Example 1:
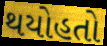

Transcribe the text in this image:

થયોહતો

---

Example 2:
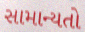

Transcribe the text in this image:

સામાન્યતો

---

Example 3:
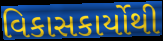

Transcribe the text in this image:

વિકાસકાર્યોથી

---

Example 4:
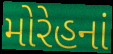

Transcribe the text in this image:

મોરેહનાં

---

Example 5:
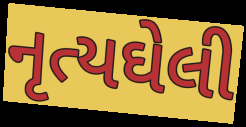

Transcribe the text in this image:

નૃત્યઘેલી